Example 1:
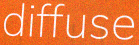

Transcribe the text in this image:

diffuse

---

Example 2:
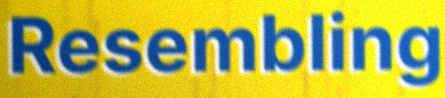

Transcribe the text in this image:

Resembling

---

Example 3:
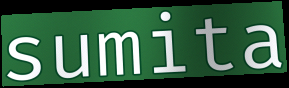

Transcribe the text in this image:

sumita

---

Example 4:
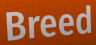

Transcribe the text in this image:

Breed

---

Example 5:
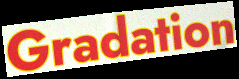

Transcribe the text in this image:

Gradation